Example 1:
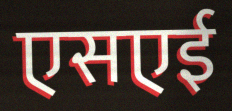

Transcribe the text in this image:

एसएई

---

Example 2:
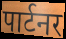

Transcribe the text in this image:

पार्टनर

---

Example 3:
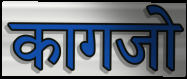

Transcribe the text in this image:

कागजो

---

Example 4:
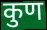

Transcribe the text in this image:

कुण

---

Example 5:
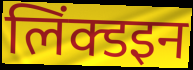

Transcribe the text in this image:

लिंक्डइन